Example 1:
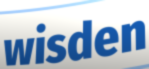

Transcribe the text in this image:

wisden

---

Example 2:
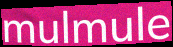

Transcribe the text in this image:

mulmule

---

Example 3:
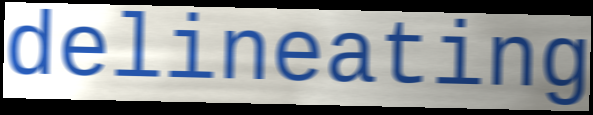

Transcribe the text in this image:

delineating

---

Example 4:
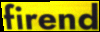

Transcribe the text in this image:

firend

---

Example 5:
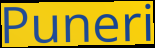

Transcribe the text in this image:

Puneri